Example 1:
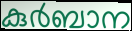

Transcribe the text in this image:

കുർബാന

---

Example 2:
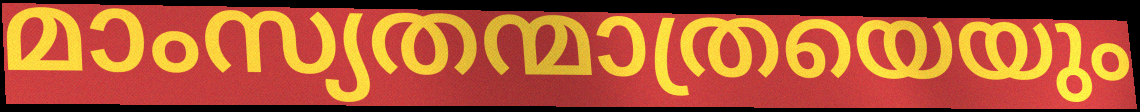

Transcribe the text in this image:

മാംസ്യതന്മാത്രയെയും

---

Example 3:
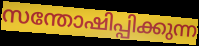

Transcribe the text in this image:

സന്തോഷിപ്പിക്കുന്ന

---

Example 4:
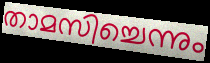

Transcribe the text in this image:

താമസിച്ചെന്നും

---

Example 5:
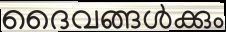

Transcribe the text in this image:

ദൈവങ്ങൾക്കും